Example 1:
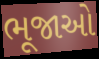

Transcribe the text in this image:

ભૂજાઓ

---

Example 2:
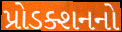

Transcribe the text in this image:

પ્રોડક્શનનો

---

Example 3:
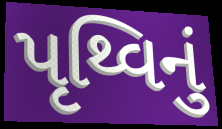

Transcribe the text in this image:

પૃથ્વિનું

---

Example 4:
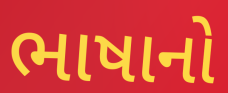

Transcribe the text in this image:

ભાષાનો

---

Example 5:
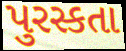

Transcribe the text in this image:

પુરસ્કતા